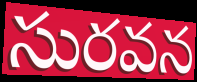
సురవన